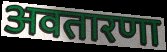
अवतारणा